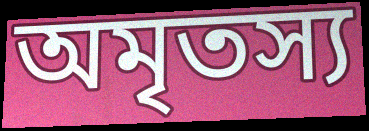
অমৃতস্য